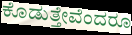
ಕೊಡುತ್ತೇವೆಂದರೂ